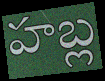
హబ్ల